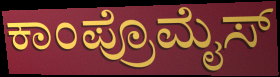
ಕಾಂಪ್ರೊಮೈಸ್